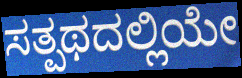
ಸತ್ಪಥದಲ್ಲಿಯೇ